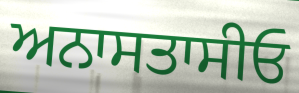
ਅਨਾਸਤਾਸੀਓ